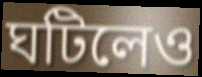
ঘটিলেও